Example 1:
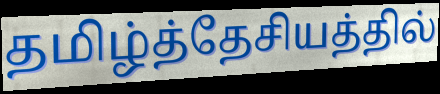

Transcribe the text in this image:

தமிழ்த்தேசியத்தில்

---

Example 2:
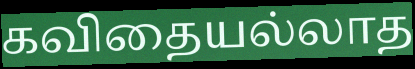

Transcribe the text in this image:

கவிதையல்லாத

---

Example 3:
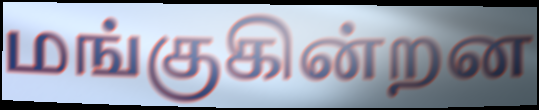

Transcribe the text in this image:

மங்குகின்றன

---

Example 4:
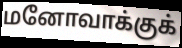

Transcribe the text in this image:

மனோவாக்குக்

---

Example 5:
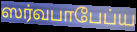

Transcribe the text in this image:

ஸர்வபாபேப்ய